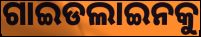
ଗାଇଡଲାଇନକୁ